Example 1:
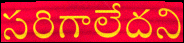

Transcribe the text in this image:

సరిగాలేదని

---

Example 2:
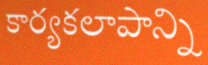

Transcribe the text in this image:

కార్యకలాపాన్ని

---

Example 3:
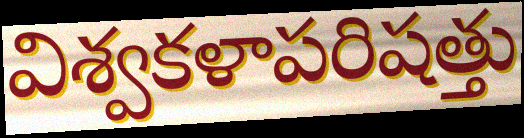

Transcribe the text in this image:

విశ్వకళాపరిషత్తు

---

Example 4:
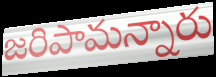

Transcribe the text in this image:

జరిపామన్నారు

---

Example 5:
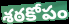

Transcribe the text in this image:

శఠకోపం